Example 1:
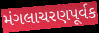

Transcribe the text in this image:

મંગલાચરણપૂર્વક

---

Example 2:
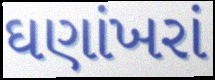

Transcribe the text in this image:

ઘણાંખરાં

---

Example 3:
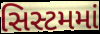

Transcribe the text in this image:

સિસ્ટમમાં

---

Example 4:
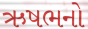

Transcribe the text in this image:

ઋષભનો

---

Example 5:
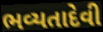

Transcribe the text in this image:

ભવ્યતાદેવી